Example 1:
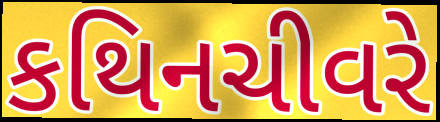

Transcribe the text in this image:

કથિનચીવરે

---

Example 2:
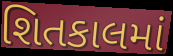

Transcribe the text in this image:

શિતકાલમાં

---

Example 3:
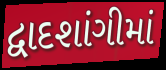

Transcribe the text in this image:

દ્વાદશાંગીમાં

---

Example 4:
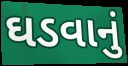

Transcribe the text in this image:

ઘડવાનું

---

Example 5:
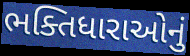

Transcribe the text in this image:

ભક્તિધારાઓનું